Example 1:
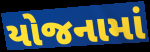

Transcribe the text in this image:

યોજનામાં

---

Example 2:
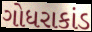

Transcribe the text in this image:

ગોધરાકાંડ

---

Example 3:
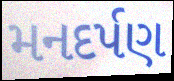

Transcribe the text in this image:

મનદર્પણ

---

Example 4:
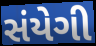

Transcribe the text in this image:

સંયેગી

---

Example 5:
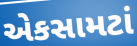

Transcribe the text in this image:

એકસામટાં